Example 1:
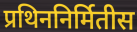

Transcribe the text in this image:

प्रथिननिर्मितीस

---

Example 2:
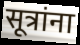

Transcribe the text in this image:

सूत्रांना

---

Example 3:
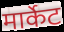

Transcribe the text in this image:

मार्केट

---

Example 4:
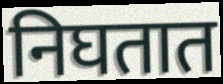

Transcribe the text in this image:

निघतात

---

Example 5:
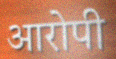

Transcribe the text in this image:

आरोपी